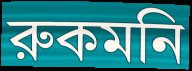
রুকমনি